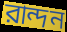
রান্দন